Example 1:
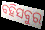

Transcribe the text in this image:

ବହିସବୁର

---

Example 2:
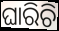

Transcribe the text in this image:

ଘାରିଚି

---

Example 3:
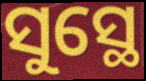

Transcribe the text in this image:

ସୁସ୍ଥେ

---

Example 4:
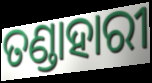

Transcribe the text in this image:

ତଣ୍ଡାହାରୀ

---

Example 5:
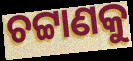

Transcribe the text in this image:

ଚଟ୍ଟାଣକୁ